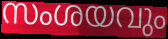
സംശയവും